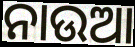
ନାଉଆ